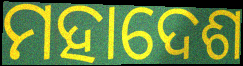
ମହାଦେଶ